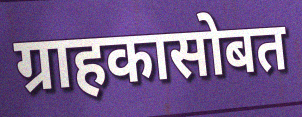
ग्राहकासोबत